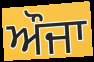
ਔਜਾ